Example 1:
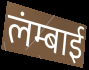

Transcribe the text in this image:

लंम्बाई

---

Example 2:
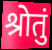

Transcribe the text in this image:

श्रोतुं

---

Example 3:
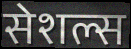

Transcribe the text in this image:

सेशल्स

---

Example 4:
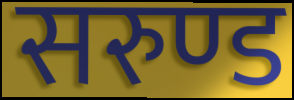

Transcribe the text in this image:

सरुण्ड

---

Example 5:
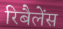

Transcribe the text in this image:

रिबैलेंस